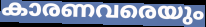
കാരണവരെയും